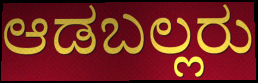
ಆಡಬಲ್ಲರು